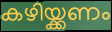
കഴിയ്ക്കണം